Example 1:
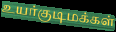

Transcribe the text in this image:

உயர்குடிமக்கள்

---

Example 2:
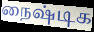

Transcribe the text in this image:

நைஷ்டிக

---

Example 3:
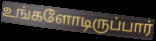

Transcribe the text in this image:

உங்களோடிருப்பார்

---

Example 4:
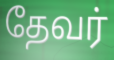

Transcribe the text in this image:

தேவர்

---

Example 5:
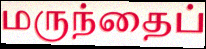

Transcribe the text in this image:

மருந்தைப்